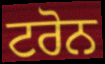
ਟਰੋਨ